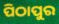
ପିଠାପୁର